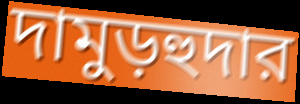
দামুড়হুদার